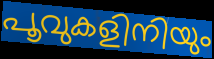
പൂവുകളിനിയും